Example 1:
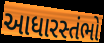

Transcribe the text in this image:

આધારસ્તંભો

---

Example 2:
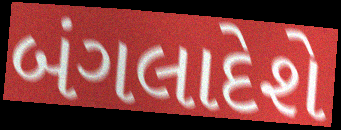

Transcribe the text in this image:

બંગલાદેશે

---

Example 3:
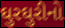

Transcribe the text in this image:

ઘુરઘુરીનો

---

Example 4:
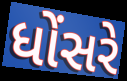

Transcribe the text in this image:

ધોંસરે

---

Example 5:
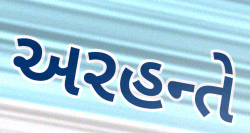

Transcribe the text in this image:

અરહન્તે